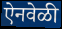
ऐनवेळी